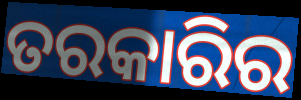
ତରକାରିର